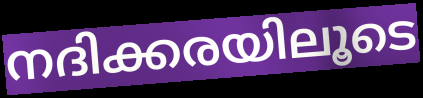
നദിക്കരയിലൂടെ